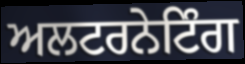
ਅਲਟਰਨੇਟਿੰਗ